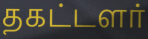
தகட்டளர்